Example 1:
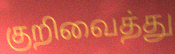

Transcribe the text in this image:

குறிவைத்து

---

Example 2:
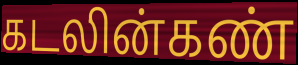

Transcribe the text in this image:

கடலின்கண்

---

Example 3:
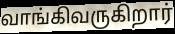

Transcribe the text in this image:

வாங்கிவருகிறார்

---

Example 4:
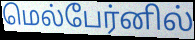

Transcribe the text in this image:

மெல்பேர்னில்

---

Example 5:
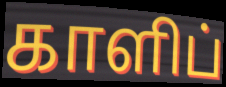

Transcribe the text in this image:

காளிப்